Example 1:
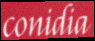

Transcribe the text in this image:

conidia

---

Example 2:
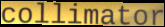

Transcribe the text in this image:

collimator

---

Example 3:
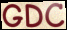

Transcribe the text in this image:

GDC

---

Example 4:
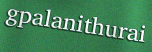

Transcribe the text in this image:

gpalanithurai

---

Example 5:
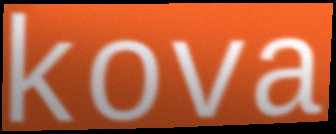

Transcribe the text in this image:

kova